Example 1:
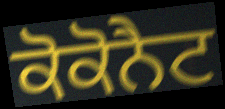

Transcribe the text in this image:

ਕੋਕੋਨੈਟ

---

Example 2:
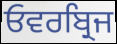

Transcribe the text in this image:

ਓਵਰਬ੍ਰਿਜ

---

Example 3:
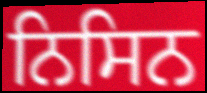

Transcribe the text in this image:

ਨਿਸਿਨ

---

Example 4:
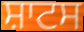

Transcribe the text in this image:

ਸ਼ਾਟਸ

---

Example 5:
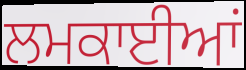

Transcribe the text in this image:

ਲਮਕਾਈਆਂ